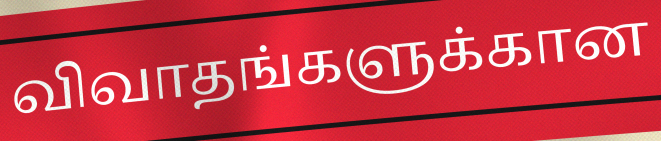
விவாதங்களுக்கான